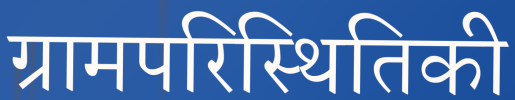
ग्रामपरिस्थितिकी